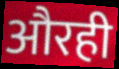
औरही